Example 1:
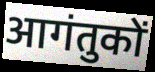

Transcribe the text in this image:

आगंतुकों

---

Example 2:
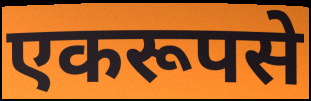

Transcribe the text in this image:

एकरूपसे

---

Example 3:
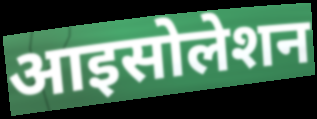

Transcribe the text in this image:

आइसोलेशन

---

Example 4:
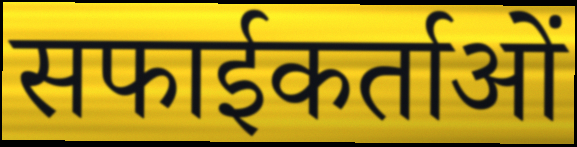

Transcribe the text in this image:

सफाईकर्ताओं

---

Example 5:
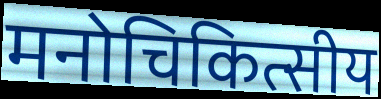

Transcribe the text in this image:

मनोचिकित्सीय